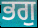
ਭਗੁ